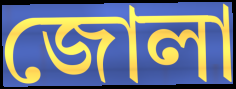
জোলা